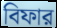
বিফার